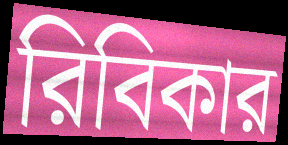
রিবিকার